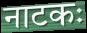
नाटकः